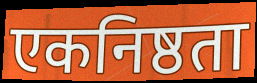
एकनिष्ठता